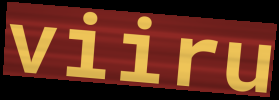
viiru